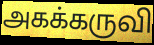
அகக்கருவி